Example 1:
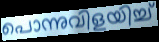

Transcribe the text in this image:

പൊന്നുവിളയിച്ച്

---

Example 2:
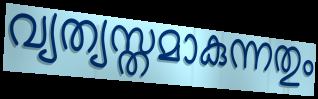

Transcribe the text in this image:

വ്യത്യസ്തമാകുന്നതും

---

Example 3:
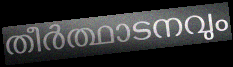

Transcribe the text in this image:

തീർത്ഥാടനവും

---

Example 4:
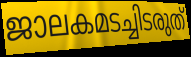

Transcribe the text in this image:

ജാലകമടച്ചിടരുത്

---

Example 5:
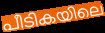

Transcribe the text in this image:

പീടികയിലെ